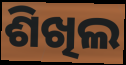
ଶିଖିଲ